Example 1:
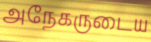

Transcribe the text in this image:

அநேகருடைய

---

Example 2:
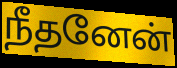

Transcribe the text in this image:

நீதனேன்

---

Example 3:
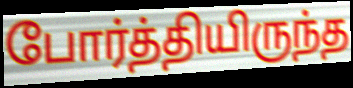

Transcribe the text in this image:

போர்த்தியிருந்த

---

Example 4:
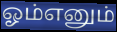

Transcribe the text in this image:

ஓம்எனும்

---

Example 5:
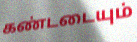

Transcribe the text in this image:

கண்டடையும்